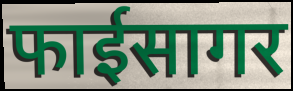
फाईसागर